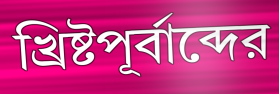
খ্রিষ্টপূর্বাব্দের